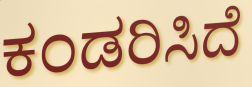
ಕಂಡರಿಸಿದೆ